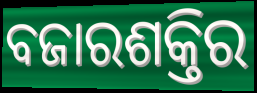
ବଜାରଶକ୍ତିର